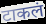
टाकलं